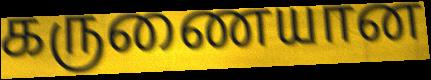
கருணையான